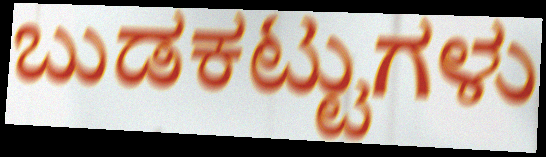
ಬುಡಕಟ್ಟುಗಳು